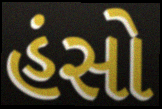
હંસો